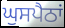
ਘੁਸਪੈਠਾਂ